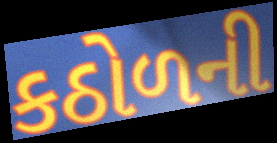
કઠોળની